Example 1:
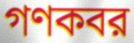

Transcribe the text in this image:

গণকবর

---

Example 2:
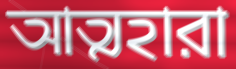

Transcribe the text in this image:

আত্মহারা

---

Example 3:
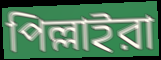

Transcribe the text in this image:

পিল্লাইরা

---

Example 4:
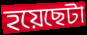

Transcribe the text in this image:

হয়েছেটা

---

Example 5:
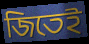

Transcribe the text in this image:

জিতেই